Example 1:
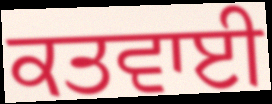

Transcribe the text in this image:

ਕਤਵਾਈ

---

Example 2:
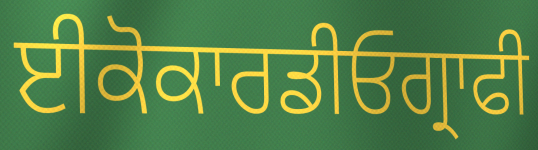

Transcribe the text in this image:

ਈਕੋਕਾਰਡੀਓਗ੍ਰਾਫੀ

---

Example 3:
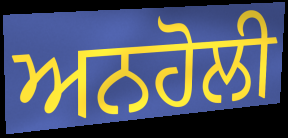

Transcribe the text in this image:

ਅਨਹੋਲੀ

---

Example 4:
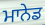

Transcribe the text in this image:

ਮਾਨੇਡ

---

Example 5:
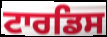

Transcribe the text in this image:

ਟਾਰਡਿਸ